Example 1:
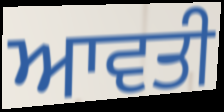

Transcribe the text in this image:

ਆਵਤੀ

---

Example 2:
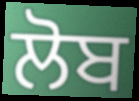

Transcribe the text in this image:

ਲੋਬ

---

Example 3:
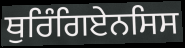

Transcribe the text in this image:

ਥੁਰਿੰਗਿਏਨਸਿਸ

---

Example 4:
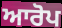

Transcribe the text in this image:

ਆਰੋਪ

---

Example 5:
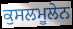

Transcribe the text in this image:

ਕੁਸਲਮੂਲੇਨ